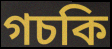
গচকি